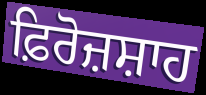
ਫ਼ਿਰੋਜ਼ਸ਼ਾਹ